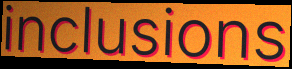
inclusions